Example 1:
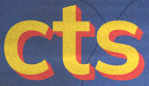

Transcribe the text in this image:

cts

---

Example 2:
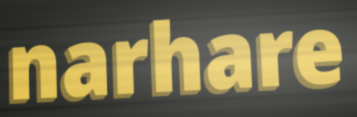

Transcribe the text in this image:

narhare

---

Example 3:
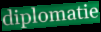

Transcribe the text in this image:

diplomatie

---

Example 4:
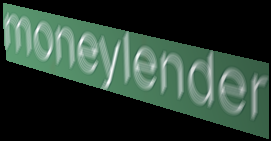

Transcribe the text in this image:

moneylender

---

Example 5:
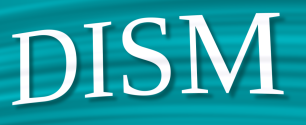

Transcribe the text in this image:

DISM